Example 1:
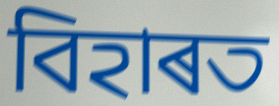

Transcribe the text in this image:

বিহাৰত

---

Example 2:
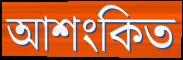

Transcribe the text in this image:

আশংকিত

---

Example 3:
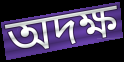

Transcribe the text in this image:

অদক্ষ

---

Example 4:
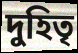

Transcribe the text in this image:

দুহিতৃ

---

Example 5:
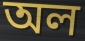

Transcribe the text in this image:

অল